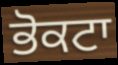
ਭੋਕਟਾ